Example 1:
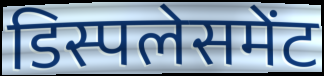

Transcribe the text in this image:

डिस्पलेसमेंट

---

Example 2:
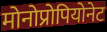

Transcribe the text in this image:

मोनोप्रोपियोनेट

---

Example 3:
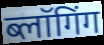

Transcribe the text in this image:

ब्लॉगिंग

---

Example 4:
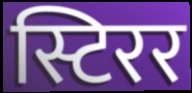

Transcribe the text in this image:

स्टिरर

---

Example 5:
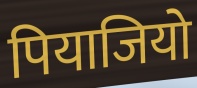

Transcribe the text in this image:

पियाजियो